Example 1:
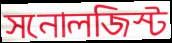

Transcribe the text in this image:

সনোলজিস্ট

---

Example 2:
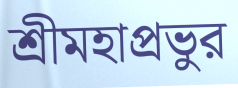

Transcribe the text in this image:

শ্রীমহাপ্রভুর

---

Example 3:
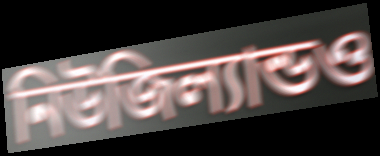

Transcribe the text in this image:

নিউজিল্যান্ডও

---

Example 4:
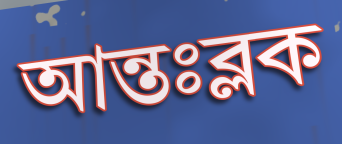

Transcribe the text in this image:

আন্তঃব্লক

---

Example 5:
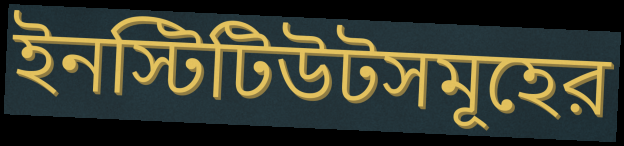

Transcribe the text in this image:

ইনস্টিটিউটসমূহের